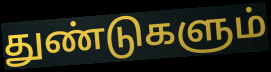
துண்டுகளும்